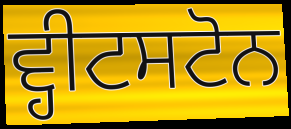
ਵ੍ਹੀਟਸਟੋਨ